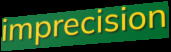
imprecision